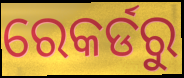
ରେକର୍ଡରୁ